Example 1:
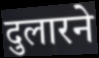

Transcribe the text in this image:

दुलारने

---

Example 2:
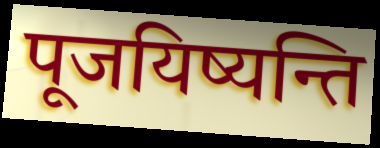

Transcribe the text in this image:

पूजयिष्यन्ति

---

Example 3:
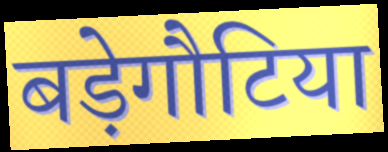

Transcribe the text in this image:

बड़ेगौटिया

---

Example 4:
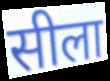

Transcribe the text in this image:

सीला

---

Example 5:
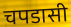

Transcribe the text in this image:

चपडासी